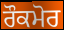
ਰੌਕਮੋਰ